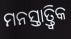
ମନସ୍ତାତ୍ତ୍ବିକ